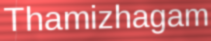
Thamizhagam